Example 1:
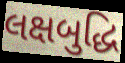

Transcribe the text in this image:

લક્ષબુદ્ધિ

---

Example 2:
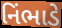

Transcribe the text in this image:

નિંભાડે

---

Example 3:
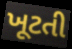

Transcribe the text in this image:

ખૂટતી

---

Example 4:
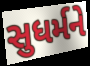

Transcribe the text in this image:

સુધર્મને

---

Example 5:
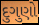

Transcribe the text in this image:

દુગુણો